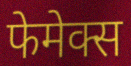
फेमेक्स